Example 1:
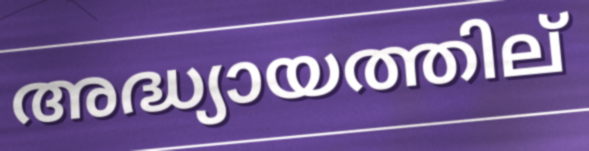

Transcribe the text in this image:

അദ്ധ്യായത്തില്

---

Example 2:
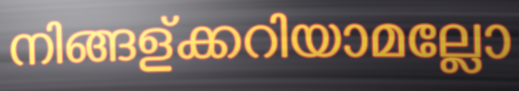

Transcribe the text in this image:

നിങ്ങള്ക്കറിയാമല്ലോ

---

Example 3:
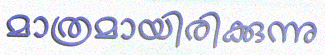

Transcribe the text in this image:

മാത്രമായിരിക്കുന്നു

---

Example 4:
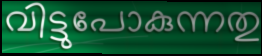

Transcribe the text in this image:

വിട്ടുപോകുന്നതു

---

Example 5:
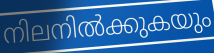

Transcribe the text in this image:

നിലനിൽക്കുകയും